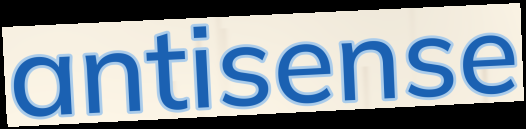
antisense